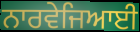
ਨਾਰਵੇਜਿਆਈ